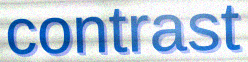
contrast